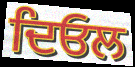
ਦਿਓਲ